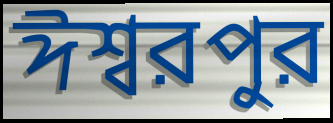
ঈশ্বরপুর